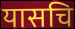
यासचि